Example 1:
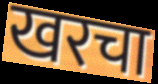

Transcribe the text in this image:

खरचा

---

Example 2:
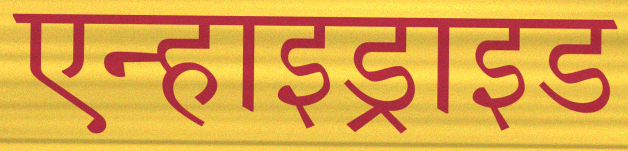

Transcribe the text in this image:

एन्हाइड्राइड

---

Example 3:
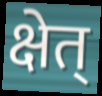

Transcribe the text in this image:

क्षेत्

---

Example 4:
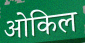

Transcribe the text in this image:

ओकिल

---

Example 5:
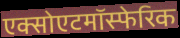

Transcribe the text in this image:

एक्सोएटमॉस्फेरिक